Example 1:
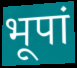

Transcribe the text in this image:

भूपां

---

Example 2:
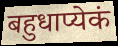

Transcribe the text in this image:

बहुधाप्येकं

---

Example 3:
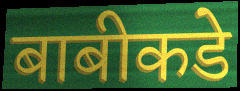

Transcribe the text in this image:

बाबीकडे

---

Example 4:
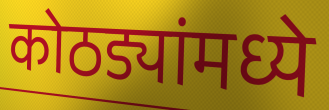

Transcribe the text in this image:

कोठड्यांमध्ये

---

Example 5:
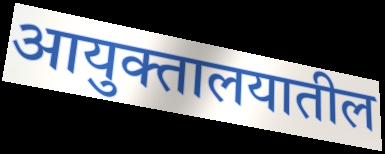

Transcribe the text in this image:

आयुक्तालयातील